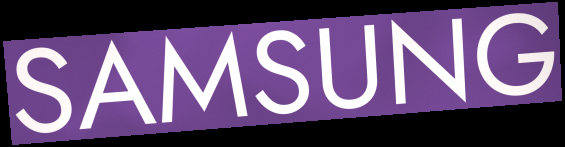
SAMSUNG